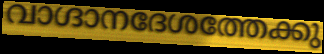
വാഗ്ദാനദേശത്തേക്കു